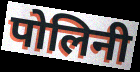
पोलिनी